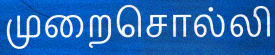
முறைசொல்லி